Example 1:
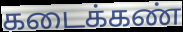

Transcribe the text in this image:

கடைக்கண்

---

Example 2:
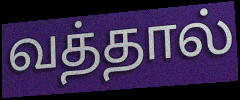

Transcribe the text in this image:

வத்தால்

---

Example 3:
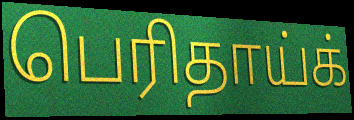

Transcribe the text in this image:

பெரிதாய்க்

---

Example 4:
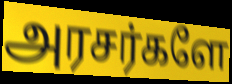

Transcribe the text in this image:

அரசர்களே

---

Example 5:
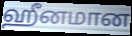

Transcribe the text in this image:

ஹீனமான